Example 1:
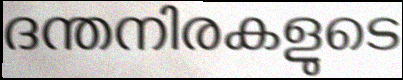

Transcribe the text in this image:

ദന്തനിരകളുടെ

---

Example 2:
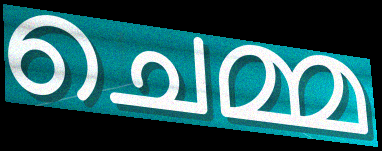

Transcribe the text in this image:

ചെമ്മ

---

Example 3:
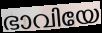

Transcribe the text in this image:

ഭാവിയേ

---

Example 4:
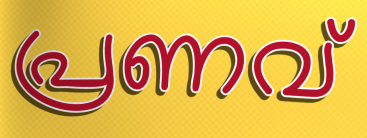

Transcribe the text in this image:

പ്രണവ്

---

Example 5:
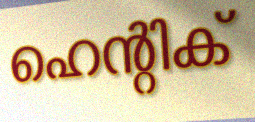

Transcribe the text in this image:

ഹെന്റിക്